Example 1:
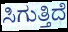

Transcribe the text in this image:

ಸಿಗುತ್ತಿದೆ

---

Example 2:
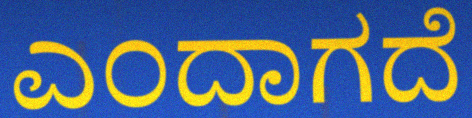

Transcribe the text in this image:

ಎಂದಾಗದೆ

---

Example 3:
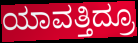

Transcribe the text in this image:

ಯಾವತ್ತಿದ್ರೂ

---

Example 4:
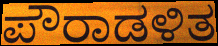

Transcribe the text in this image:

ಪೌರಾಡಳಿತ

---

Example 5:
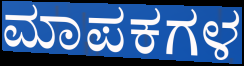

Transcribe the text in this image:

ಮಾಪಕಗಳ